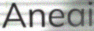
Aneai